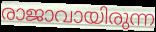
രാജാവായിരുന്ന